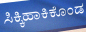
ಸಿಕ್ಕಿಹಾಕಿಕೊಂಡ